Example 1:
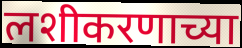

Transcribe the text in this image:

लशीकरणाच्या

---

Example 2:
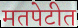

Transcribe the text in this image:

मतपेटीत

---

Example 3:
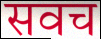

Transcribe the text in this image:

सवच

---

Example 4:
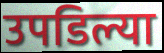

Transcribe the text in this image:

उपडिल्या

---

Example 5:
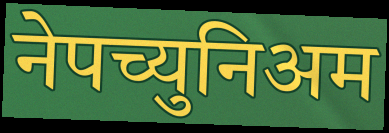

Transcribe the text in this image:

नेपच्युनिअम